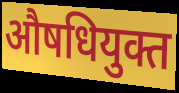
औषधियुक्त